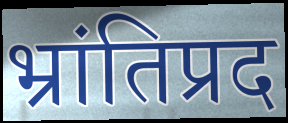
भ्रांतिप्रद